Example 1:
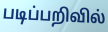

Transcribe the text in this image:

படிப்பறிவில்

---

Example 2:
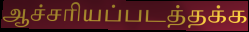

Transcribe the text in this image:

ஆச்சரியப்படத்தக்க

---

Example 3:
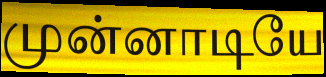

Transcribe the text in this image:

முன்னாடியே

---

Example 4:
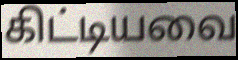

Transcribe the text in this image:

கிட்டியவை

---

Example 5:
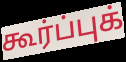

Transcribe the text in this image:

கூர்ப்புக்